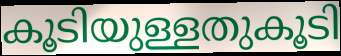
കൂടിയുള്ളതുകൂടി